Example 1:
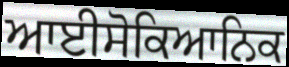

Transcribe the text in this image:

ਆਈਸੋਕਿਆਨਿਕ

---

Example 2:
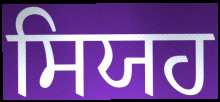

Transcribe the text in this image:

ਸਿਯਹ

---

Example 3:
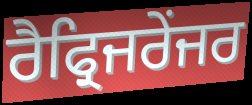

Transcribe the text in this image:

ਰੈਫ੍ਰਿਜਰੇਂਜਰ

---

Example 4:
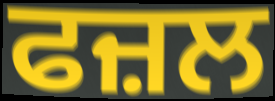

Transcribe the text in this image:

ਫਜ਼ਲ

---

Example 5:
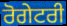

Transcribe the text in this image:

ਰੋਗੇਟਰੀ